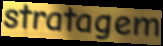
stratagem